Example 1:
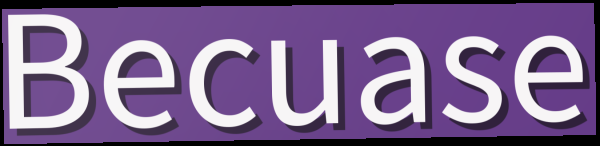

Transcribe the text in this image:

Becuase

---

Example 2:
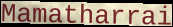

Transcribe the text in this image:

Mamatharrai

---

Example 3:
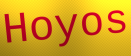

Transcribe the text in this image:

Hoyos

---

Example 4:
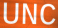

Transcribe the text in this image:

UNC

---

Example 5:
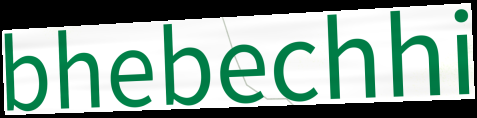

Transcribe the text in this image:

bhebechhi